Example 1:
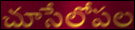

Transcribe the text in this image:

చూసేలోపల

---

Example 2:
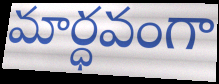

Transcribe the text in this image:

మార్ధవంగా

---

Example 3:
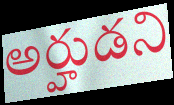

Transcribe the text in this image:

అర్హుడని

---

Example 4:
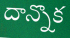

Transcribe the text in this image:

దాన్నొక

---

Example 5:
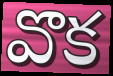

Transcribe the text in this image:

వొక